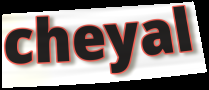
cheyal